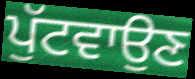
ਪੁੱਟਵਾਉਣ